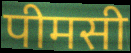
पीमसी